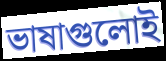
ভাষাগুলোই